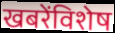
खबरेंविशेष